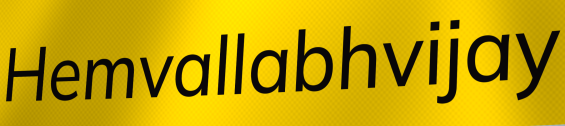
Hemvallabhvijay